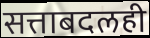
सत्ताबदलही